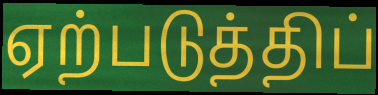
ஏற்படுத்திப்